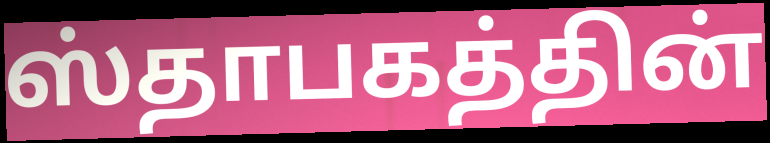
ஸ்தாபகத்தின்